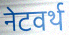
नेटवर्थ